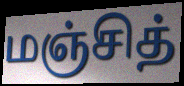
மஞ்சித்